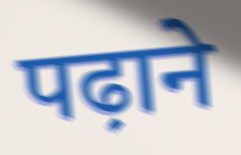
पढ़ाने